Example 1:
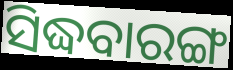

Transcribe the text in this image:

ସିଦ୍ଧବାରଙ୍ଗ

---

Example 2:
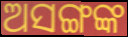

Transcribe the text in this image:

ଅସଙ୍ଗଙ୍କ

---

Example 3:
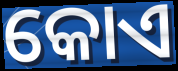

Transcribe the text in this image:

କୋଏ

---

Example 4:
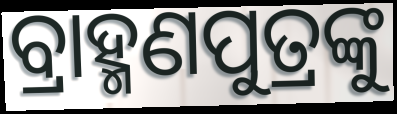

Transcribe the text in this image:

ବ୍ରାହ୍ମଣପୁତ୍ରଙ୍କୁ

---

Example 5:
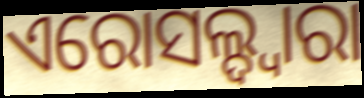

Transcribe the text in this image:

ଏରୋସଲ୍ଦ୍ୱାରା